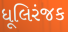
ધૂલિરંજક